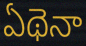
ఏథెనా